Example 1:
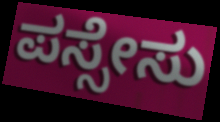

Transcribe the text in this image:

ಪಸ್ಸೇಸು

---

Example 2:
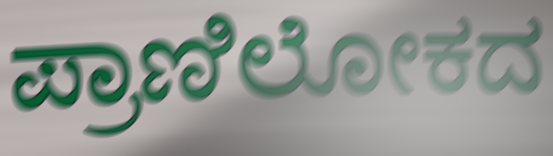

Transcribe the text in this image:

ಪ್ರಾಣಿಲೋಕದ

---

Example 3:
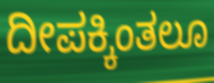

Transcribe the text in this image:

ದೀಪಕ್ಕಿಂತಲೂ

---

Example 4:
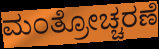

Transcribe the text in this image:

ಮಂತ್ರೋಚ್ಚರಣೆ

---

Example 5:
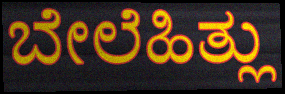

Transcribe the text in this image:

ಬೇಲೆಹಿತ್ಲು